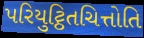
પરિયુટ્ઠિતચિત્તોતિ